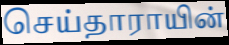
செய்தாராயின்